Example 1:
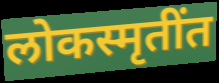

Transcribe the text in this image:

लोकस्मृतींत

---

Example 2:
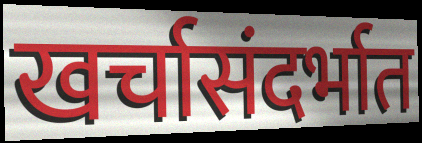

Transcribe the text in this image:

खर्चासंदर्भात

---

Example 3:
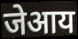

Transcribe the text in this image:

जेआय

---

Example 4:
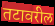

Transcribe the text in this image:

तटावरील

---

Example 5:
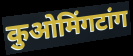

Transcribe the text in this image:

कुओमिंगटांग